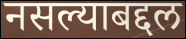
नसल्याबद्दल